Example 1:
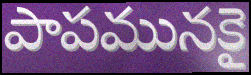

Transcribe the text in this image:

పాపమునకై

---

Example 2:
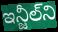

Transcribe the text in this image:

ఇన్జీల్‌ని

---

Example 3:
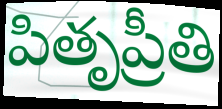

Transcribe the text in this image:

పితృప్రీతి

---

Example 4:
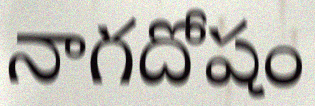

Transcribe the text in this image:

నాగదోషం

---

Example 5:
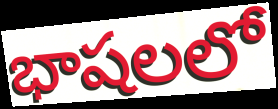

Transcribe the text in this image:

భాషలలో